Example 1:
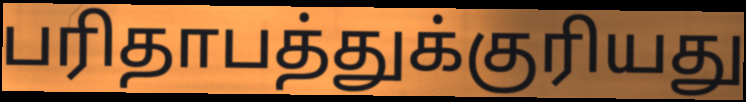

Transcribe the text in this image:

பரிதாபத்துக்குரியது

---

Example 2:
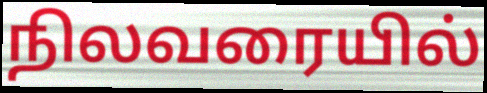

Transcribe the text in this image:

நிலவரையில்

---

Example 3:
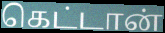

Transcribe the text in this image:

கெட்டான்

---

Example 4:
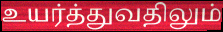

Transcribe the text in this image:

உயர்த்துவதிலும்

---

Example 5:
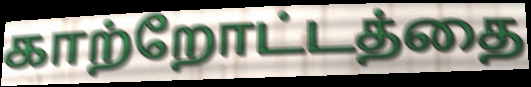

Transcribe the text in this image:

காற்றோட்டத்தை